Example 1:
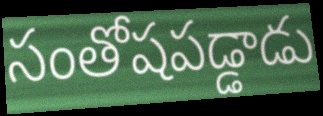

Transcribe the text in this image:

సంతోషపడ్డాడు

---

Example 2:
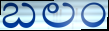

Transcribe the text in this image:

బలం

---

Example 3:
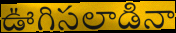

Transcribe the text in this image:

ఊగిసలాడినా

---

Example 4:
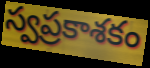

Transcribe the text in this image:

స్వప్రకాశకం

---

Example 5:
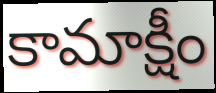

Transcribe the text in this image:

కామాక్షీం